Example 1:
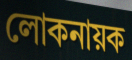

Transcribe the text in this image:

লোকনায়ক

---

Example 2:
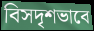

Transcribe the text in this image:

বিসদৃশভাবে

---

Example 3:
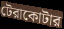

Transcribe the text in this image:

টেরাকোটার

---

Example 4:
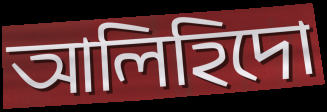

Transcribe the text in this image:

আলিহিদো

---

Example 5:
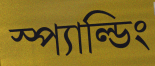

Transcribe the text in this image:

স্প্যাল্ডিং